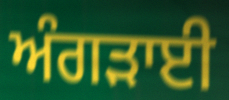
ਅੰਗੜਾਈ